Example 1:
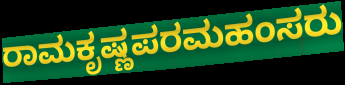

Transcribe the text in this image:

ರಾಮಕೃಷ್ಣಪರಮಹಂಸರು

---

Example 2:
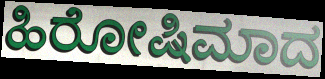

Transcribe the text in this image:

ಹಿರೋಷಿಮಾದ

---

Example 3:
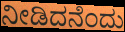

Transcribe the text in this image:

ನೀಡಿದನೆಂದು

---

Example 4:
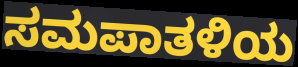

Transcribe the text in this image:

ಸಮಪಾತಳಿಯ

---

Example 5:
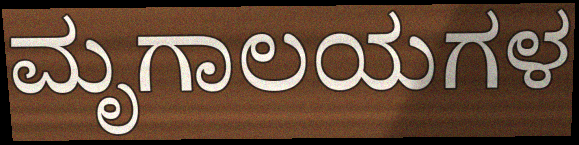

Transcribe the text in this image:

ಮೃಗಾಲಯಗಳ